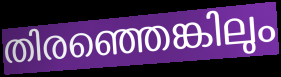
തിരഞ്ഞെങ്കിലും